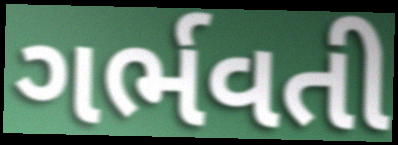
ગર્ભવતી